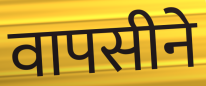
वापसीने